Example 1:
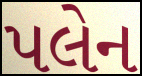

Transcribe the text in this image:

પલેન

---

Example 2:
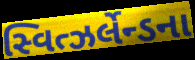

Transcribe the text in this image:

સ્વિત્ઝર્લેન્ડના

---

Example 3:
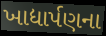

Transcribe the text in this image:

ખાદ્યાર્પણના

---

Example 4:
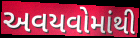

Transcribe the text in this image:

અવયવોમાંથી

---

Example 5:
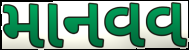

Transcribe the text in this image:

માનવવ